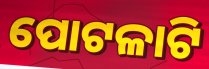
ପୋଟଳାଟି